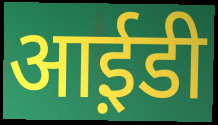
आई़डी